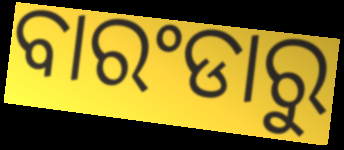
ବାରଂଡାରୁ